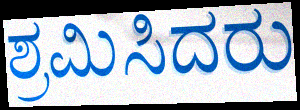
ಶ್ರಮಿಸಿದರು